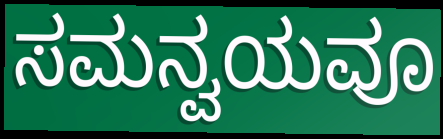
ಸಮನ್ವಯವೂ